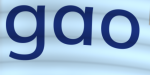
gao